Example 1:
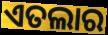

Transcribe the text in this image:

ଏତଲାର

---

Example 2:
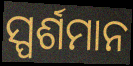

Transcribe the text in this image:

ସ୍ପର୍ଶମାନ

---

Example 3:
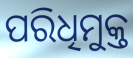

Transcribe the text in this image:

ପରିଧିମୁକ୍ତ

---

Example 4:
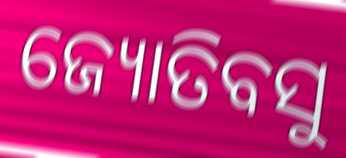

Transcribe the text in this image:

ଜ୍ୟୋତିବସୁ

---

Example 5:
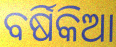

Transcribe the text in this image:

ବର୍ଷିକିଆ